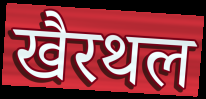
खैरथल